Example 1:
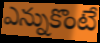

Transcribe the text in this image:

ఎన్నుకొంటే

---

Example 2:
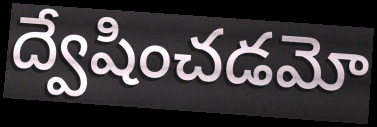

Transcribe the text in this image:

ద్వేషించడమో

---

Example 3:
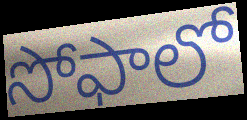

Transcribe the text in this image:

సోఫాలో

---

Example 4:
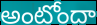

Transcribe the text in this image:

అంటోందా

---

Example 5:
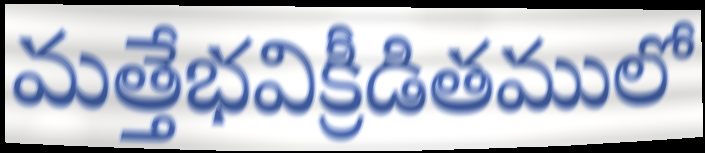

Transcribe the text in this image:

మత్తేభవిక్రీడితములో